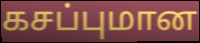
கசப்புமான